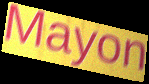
Mayon